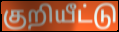
குறியீட்டு